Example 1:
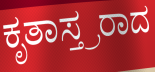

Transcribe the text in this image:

ಕೃತಾಸ್ತ್ರರಾದ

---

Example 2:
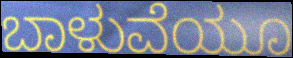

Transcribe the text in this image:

ಬಾಳುವೆಯೂ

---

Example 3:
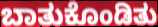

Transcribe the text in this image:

ಬಾತುಕೊಂಡಿತು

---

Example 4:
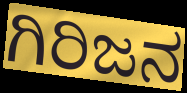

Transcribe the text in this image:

ಗಿರಿಜನ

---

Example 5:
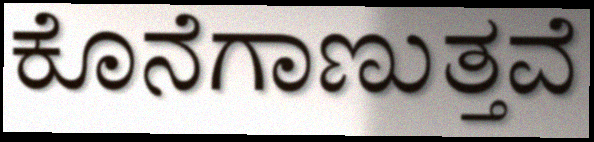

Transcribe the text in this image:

ಕೊನೆಗಾಣುತ್ತವೆ